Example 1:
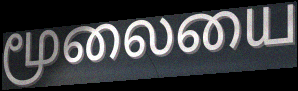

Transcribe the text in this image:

மூலையை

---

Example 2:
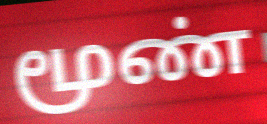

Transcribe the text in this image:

மூண்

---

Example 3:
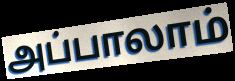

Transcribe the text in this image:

அப்பாலாம்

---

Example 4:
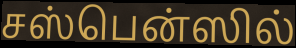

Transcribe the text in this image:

சஸ்பென்ஸில்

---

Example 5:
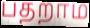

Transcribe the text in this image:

பதறாம